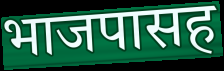
भाजपासह